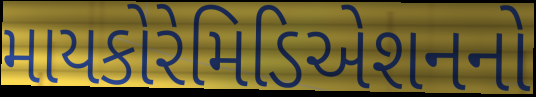
માયકોરેમિડિએશનનો